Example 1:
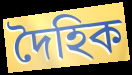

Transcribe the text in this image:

দৈহিক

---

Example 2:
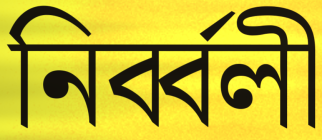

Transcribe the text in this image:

নিৰ্ব্বলী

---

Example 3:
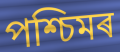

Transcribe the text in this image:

পশ্চিমৰ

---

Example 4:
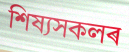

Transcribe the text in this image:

শিষ্যসকলৰ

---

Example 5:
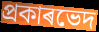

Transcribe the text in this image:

প্ৰকাৰভেদ